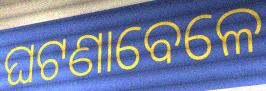
ଘଟଣାବେଳେ